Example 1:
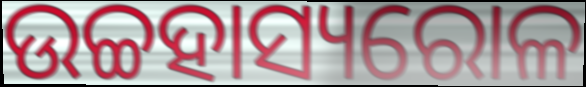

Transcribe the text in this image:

ଉଚ୍ଚହାସ୍ୟରୋଳ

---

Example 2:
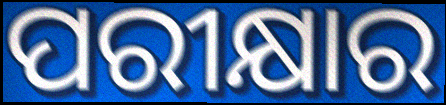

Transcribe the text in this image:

ପରୀକ୍ଷାର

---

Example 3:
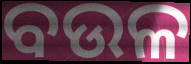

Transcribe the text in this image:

ବଉଳ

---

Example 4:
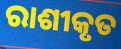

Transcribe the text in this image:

ରାଶୀକୃତ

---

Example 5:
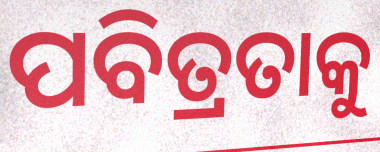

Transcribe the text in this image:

ପବିତ୍ରତାକୁ